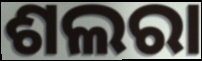
ଶଲରା